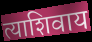
त्याशिवाय